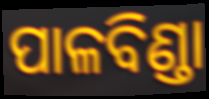
ପାଳବିଣ୍ଡା